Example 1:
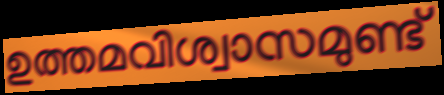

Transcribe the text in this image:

ഉത്തമവിശ്വാസമുണ്ട്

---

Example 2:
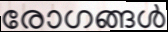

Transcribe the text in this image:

രോഗങ്ങൾ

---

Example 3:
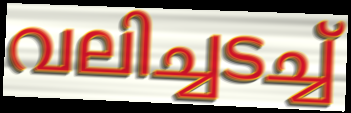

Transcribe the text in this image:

വലിച്ചടച്ച്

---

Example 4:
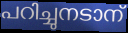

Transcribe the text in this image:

പറിച്ചുനടാന്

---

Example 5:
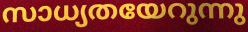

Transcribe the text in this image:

സാധ്യതയേറുന്നു